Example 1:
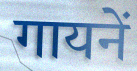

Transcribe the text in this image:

गायनें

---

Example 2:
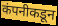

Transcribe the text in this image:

कंपनीकडून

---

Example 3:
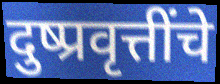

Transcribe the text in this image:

दुष्प्रवृत्तींचे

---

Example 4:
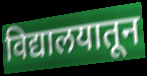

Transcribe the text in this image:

विद्यालयातून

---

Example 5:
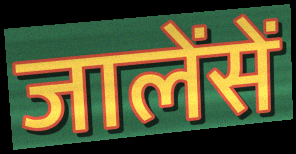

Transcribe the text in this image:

जालेंसें